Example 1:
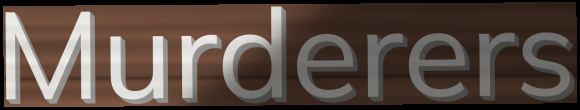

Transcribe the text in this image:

Murderers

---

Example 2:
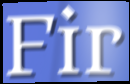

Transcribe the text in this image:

Fir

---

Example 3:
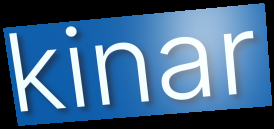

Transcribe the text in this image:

kinar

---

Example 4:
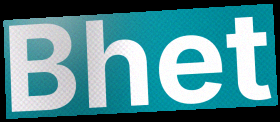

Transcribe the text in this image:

Bhet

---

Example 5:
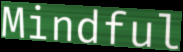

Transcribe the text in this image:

Mindful